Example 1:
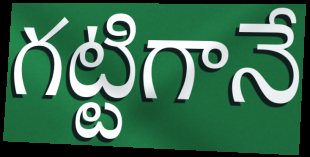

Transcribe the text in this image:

గట్టిగానే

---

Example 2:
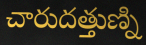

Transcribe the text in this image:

చారుదత్తుణ్ని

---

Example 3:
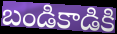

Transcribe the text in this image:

బండికాడికి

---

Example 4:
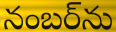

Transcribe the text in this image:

నంబర్‌ను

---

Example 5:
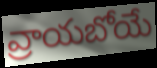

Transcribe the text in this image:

వ్రాయబోయే